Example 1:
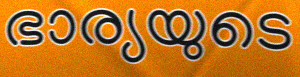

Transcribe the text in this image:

ഭാര്യയുടെ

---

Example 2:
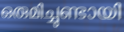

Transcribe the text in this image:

ഒരുമിച്ചുണ്ടായി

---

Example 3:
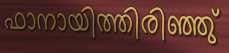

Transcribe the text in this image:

ഫാനായിത്തിരിഞ്ഞു്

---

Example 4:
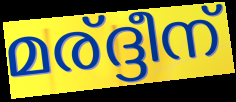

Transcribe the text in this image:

മര്ദ്ദീന്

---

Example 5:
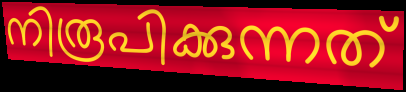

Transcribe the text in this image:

നിരൂപിക്കുന്നത്